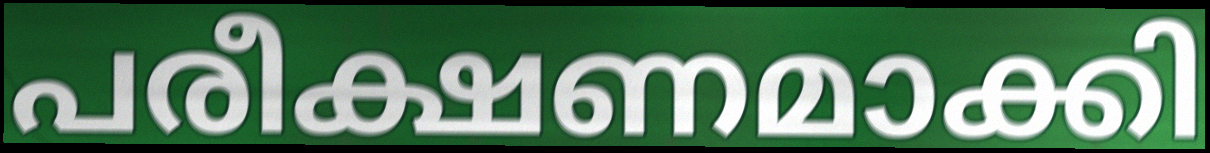
പരീക്ഷണമാക്കി